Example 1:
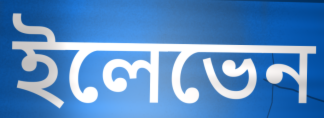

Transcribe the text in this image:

ইলেভেন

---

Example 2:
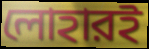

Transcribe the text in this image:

লোহারই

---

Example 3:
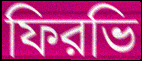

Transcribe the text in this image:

ফিরভি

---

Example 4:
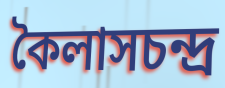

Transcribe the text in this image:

কৈলাসচন্দ্র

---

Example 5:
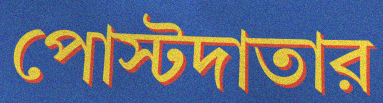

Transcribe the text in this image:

পোস্টদাতার